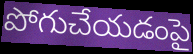
పోగుచేయడంపై